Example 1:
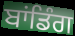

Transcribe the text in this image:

ਬਾਂਡਿੰਗ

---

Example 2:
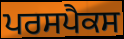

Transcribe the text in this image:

ਪਰਸਪੈਕਸ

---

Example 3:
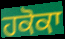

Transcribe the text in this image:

ਹਕੋਕਾ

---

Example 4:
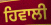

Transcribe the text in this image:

ਹਿਵਾਲੀ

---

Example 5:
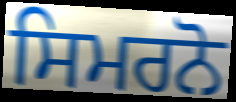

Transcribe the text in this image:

ਸਿਮਰਨੋ